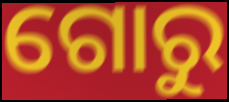
ଗୋରୁ